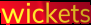
wickets